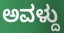
ಅವಳ್ದು